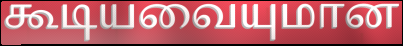
கூடியவையுமான